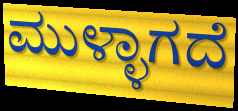
ಮುಳ್ಳಾಗದೆ